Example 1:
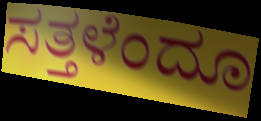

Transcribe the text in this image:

ಸತ್ತಳೆಂದೂ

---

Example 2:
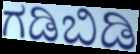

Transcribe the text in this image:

ಗಡಿಬಿಡಿ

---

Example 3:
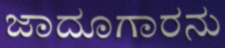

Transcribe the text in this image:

ಜಾದೂಗಾರನು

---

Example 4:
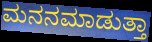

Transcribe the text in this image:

ಮನನಮಾಡುತ್ತಾ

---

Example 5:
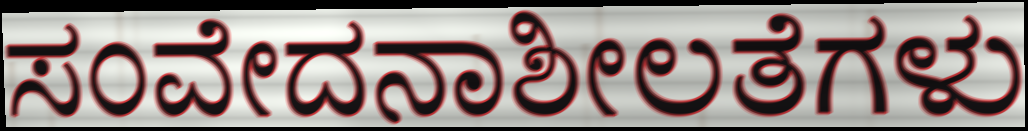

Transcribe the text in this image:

ಸಂವೇದನಾಶೀಲತೆಗಳು